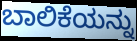
ಬಾಲಿಕೆಯನ್ನು